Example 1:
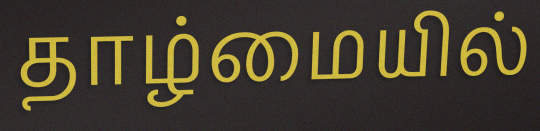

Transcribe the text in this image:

தாழ்மையில்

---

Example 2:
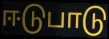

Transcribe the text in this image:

ஈடுபாடு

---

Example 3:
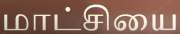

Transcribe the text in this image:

மாட்சியை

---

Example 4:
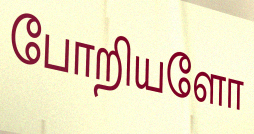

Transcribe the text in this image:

போறியளோ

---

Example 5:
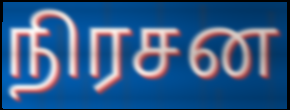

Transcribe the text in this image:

நிரசன